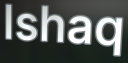
Ishaq